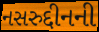
નસરુદ્દીનની